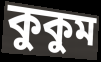
কুকুম